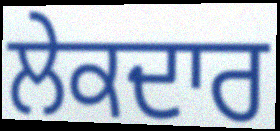
ਲੇਕਦਾਰ